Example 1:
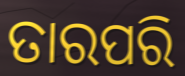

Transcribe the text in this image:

ତାରପରି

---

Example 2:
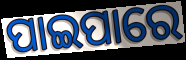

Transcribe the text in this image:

ପାଇପାରେ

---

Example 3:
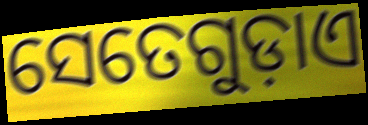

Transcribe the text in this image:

ସେତେଗୁଡ଼ାଏ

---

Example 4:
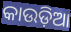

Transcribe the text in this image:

କାଉଡ଼ିଆ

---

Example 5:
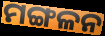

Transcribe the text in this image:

ମଙ୍ଗଳନ